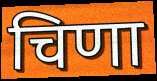
चिणा